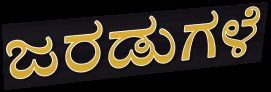
ಜರಡುಗಳೆ